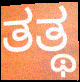
ತತ್ಥ